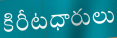
కిరీటధారులు